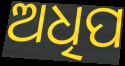
ଅଧିପ